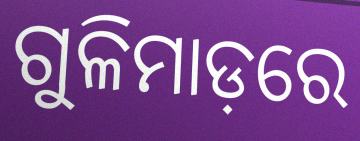
ଗୁଳିମାଡ଼ରେ